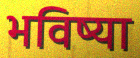
भविष्या